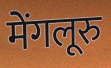
मेंगलूरु